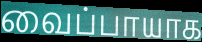
வைப்பாயாக